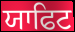
ਯਾਫਿਟ